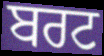
ਬਰਟ